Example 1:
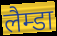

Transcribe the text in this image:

लैम्डा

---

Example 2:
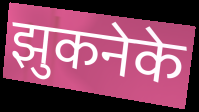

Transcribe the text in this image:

झुकनेके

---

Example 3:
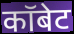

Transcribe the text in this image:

कॉबेट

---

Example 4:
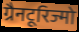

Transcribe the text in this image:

ग्रैनटूरिज्मो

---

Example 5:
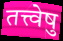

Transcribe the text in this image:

तत्त्वेषु